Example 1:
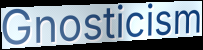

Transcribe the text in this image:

Gnosticism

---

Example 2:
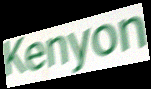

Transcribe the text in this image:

Kenyon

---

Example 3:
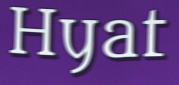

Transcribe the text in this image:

Hyat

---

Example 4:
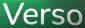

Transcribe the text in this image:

Verso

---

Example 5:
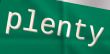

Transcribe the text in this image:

plenty